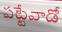
పట్టేవాడో